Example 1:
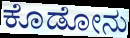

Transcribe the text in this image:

ಕೊಡೋನು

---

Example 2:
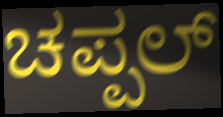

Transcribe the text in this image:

ಚಪ್ಪಲ್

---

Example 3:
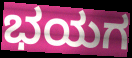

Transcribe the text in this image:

ಭಯಗ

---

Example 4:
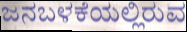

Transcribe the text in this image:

ಜನಬಳಕೆಯಲ್ಲಿರುವ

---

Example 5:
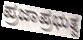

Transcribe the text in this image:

ಪ್ರಜಾಪ್ರಭುತ್ವ